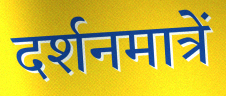
दर्शनमात्रें